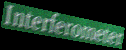
Interferometer